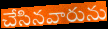
చేసినవారును